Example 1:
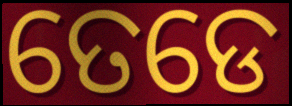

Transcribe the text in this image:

ତେଡେ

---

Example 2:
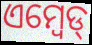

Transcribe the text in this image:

ଏମ୍ବେଡ୍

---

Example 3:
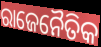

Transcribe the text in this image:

ରାଜେନୈତିକ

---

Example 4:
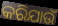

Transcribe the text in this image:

କରିଯାଉଁ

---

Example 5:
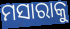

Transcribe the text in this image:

ମସାରାକୁ